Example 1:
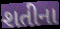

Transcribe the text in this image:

શતીના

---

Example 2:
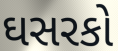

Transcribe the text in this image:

ઘસરકો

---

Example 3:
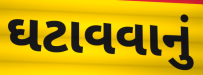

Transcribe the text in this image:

ઘટાવવાનું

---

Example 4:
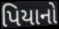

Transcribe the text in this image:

પિયાનો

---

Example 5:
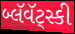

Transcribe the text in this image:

બ્લૅવૅટ્સ્કી